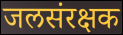
जलसंरक्षक